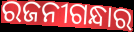
ରଜନୀଗନ୍ଧାର